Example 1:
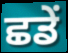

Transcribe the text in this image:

ਛਡੇਂ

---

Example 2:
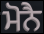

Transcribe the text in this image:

ਮੋਨੈ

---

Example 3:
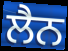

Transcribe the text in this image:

ਲੈਨ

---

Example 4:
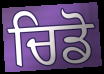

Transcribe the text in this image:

ਚਿਡੋ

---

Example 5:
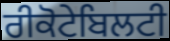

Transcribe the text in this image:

ਰੀਕੋਟੇਬਿਲਟੀ